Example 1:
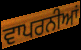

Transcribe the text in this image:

ਵਾਪਰਨੀਆਂ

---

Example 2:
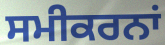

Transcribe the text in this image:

ਸਮੀਕਰਨਾਂ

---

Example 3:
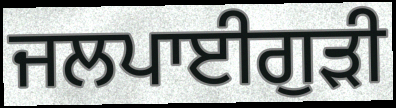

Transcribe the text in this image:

ਜਲਪਾਈਗੁਡ਼ੀ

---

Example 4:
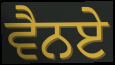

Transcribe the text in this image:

ਵੈਨਏ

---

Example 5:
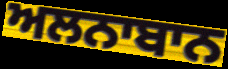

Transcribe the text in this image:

ਅਲਨਾਬਾਨ